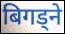
बिगड्ने